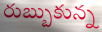
రుబ్బుకున్న